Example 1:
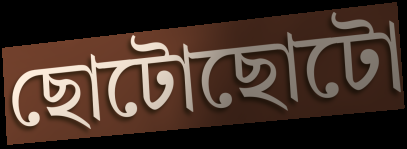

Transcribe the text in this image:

ছোটোছোটো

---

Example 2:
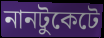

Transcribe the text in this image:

নানটুকেটে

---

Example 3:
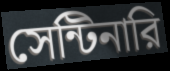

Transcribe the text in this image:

সেন্টিনারি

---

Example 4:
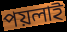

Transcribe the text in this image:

পয়লাই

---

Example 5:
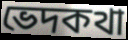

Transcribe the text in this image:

ভেদকথা